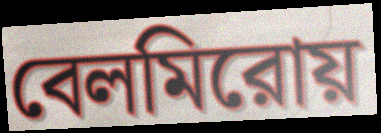
বেলমিরোয়